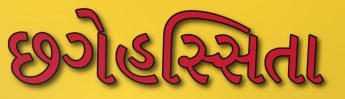
છગેહસ્સિતા